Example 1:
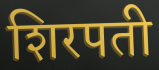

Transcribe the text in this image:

शिरपती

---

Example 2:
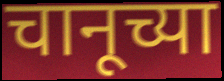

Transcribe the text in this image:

चानूच्या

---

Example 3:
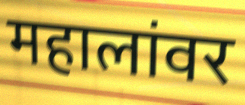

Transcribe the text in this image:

महालांवर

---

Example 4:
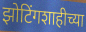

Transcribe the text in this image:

झोटिंगशाहीच्या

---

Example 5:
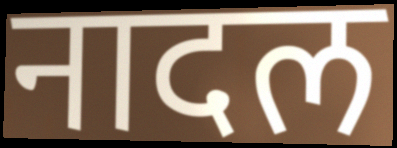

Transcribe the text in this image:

नादल